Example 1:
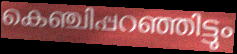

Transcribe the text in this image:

കെഞ്ചിപ്പറഞ്ഞിട്ടും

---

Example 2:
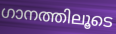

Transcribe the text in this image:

ഗാനത്തിലൂടെ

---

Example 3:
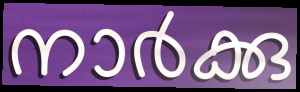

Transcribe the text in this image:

നാർക്കു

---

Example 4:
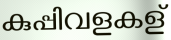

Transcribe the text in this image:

കുപ്പിവളകള്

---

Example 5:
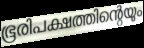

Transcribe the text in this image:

ഭൂരിപക്ഷത്തിന്റെയും